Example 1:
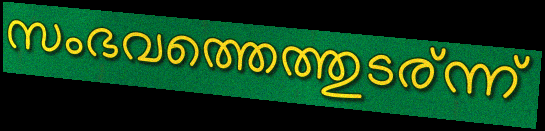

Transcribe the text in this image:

സംഭവത്തെത്തുടര്ന്ന്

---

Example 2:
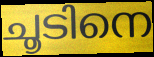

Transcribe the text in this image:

ചൂടിനെ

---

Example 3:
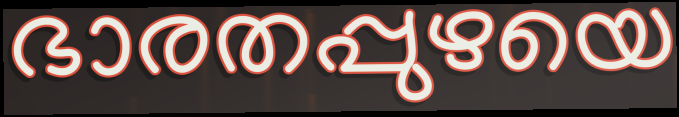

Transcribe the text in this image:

ഭാരതപ്പുഴയെ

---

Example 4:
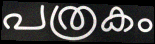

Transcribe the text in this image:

പത്രകം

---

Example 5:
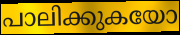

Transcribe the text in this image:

പാലിക്കുകയോ